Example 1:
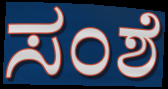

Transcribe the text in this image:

ಸಂಶೆ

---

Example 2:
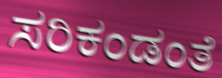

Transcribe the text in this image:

ಸರಿಕಂಡಂತೆ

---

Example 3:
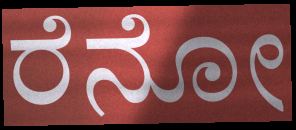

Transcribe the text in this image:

ರೆನೋ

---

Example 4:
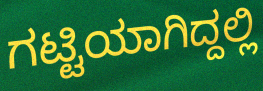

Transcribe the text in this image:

ಗಟ್ಟಿಯಾಗಿದ್ದಲ್ಲಿ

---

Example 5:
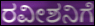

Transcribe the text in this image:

ರವೀಶನಿಗೆ